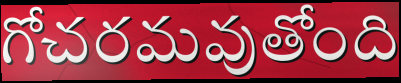
గోచరమవుతోంది